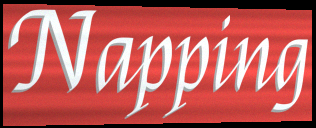
Napping